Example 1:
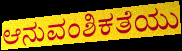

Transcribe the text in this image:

ಆನುವಂಶಿಕತೆಯು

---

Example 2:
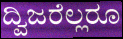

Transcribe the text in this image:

ದ್ವಿಜರೆಲ್ಲರೂ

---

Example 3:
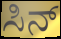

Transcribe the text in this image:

ಸಿನ್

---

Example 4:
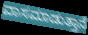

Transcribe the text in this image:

ವಾಸಮಾಡುತ್ತಾನೆ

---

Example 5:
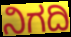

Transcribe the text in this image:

ನಿಗದಿ